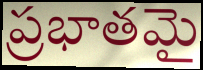
ప్రభాతమై